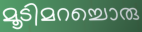
മൂടിമറച്ചൊരു